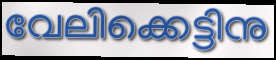
വേലിക്കെട്ടിനു